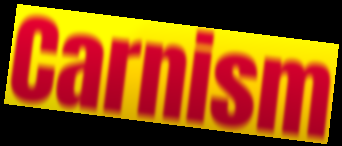
Carnism